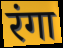
रंगा